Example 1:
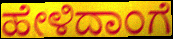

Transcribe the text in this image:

ಹೇಳಿದಾಂಗೆ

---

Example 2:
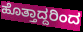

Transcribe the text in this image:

ಹೊತ್ತಾದ್ದರಿಂದ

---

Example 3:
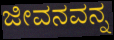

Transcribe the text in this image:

ಜೀವನವನ್ನ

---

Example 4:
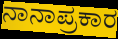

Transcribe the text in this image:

ನಾನಾಪ್ರಕಾರ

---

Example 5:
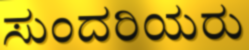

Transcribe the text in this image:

ಸುಂದರಿಯರು